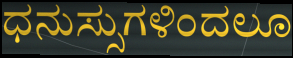
ಧನುಸ್ಸುಗಳಿಂದಲೂ